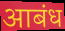
आबंध